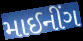
માઈનીંગ